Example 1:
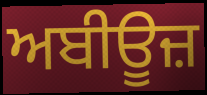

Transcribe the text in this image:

ਅਬੀਊਜ਼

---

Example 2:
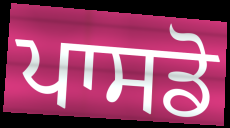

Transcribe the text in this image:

ਪਾਸਡੋ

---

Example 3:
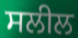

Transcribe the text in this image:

ਸਲੀਲ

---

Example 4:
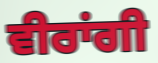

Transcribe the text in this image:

ਵੀਰਾਂਗੀ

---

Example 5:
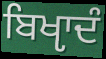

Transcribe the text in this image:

ਬਿਖੵਾਦੰ